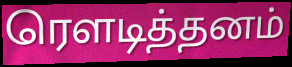
ரௌடித்தனம்